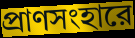
প্রাণসংহারে